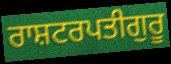
ਰਾਸ਼ਟਰਪਤੀਗੁਰੂ